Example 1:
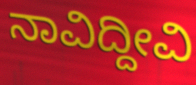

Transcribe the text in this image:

ನಾವಿದ್ದೀವಿ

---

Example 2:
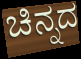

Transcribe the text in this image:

ಚಿನ್ನದ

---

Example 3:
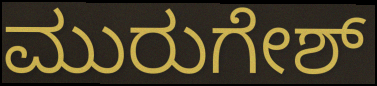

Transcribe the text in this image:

ಮುರುಗೇಶ್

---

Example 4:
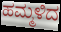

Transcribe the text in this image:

ಹಮ್ಮಳಿದ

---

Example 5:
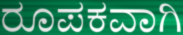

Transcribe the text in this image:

ರೂಪಕವಾಗಿ